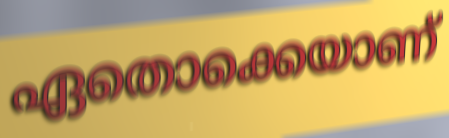
ഏതൊക്കെയാണ്